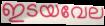
ഇടയവേല